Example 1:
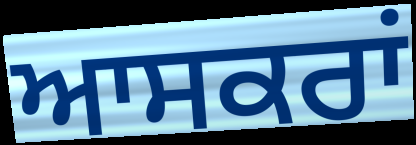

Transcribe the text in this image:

ਆਸਕਰਾਂ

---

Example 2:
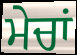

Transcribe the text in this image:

ਮੇਚਾਂ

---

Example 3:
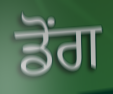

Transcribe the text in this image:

ਡੋਂਗ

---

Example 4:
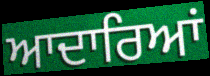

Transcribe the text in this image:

ਆਦਾਰਿਆਂ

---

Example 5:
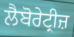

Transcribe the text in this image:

ਲੈਬੋਰੇਟ੍ਰੀਜ਼